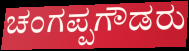
ಚಂಗಪ್ಪಗೌಡರು